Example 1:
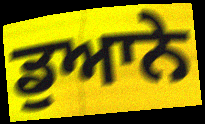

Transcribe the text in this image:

ਡੁਆਨੇ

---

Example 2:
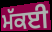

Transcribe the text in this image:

ਮੱਕਈ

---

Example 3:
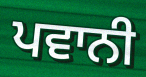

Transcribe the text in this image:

ਪਵਾਨੀ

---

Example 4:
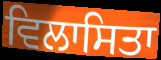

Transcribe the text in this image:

ਵਿਲਾਸਿਤਾ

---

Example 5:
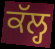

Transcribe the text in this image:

ਕੱਲ੍ਹ